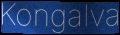
Kongalva